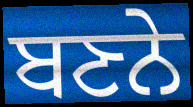
ਬਣਨੇ